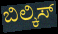
ಬಿಲ್ಕಿಸ್